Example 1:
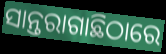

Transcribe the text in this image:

ସାନ୍ତରାଗାଛିଠାରେ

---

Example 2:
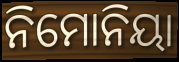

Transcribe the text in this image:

ନିମୋନିୟା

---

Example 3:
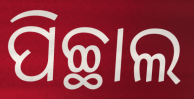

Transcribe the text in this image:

ପିଚ୍ଛାଲ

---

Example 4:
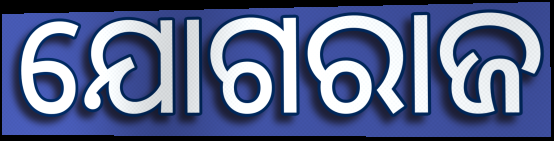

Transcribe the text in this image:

ଯୋଗରାଜ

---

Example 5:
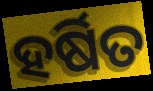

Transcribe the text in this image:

ହର୍ଷିତ